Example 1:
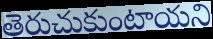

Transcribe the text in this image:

తెరుచుకుంటాయని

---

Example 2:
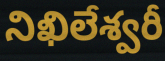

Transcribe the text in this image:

నిఖిలేశ్వరీ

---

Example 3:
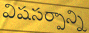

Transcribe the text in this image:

విషసర్పాన్ని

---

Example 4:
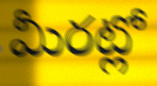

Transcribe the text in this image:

మీరట్లో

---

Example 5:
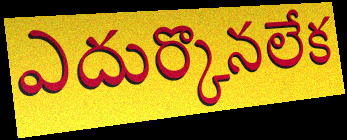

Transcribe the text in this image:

ఎదుర్కొనలేక